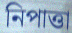
নিপাত্তা